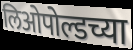
लिओपोल्डच्या